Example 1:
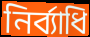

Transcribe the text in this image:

নির্ব্যাধি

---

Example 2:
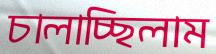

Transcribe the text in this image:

চালাচ্ছিলাম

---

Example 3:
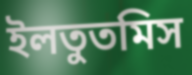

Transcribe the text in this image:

ইলতুতমিস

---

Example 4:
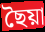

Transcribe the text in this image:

ছৈয়া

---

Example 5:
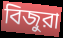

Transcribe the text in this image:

বিজুরা